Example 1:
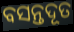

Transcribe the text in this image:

ବସନ୍ତଦୂତ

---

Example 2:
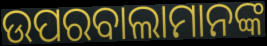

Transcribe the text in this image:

ଉପରବାଲାମାନଙ୍କ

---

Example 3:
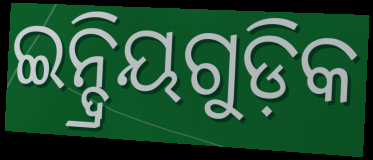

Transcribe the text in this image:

ଇନ୍ଦ୍ରିୟଗୁଡ଼ିକ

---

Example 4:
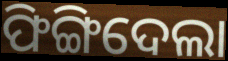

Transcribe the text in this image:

ଫିଙ୍ଗିଦେଲା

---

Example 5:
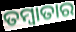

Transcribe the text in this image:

ତମ୍ବାତାର